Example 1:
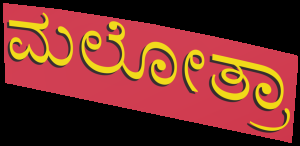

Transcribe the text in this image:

ಮಲೋತ್ರಾ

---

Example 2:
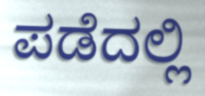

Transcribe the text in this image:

ಪಡೆದಲ್ಲಿ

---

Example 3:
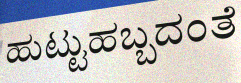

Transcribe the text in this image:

ಹುಟ್ಟುಹಬ್ಬದಂತೆ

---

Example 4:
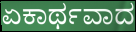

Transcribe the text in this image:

ಏಕಾರ್ಥವಾದ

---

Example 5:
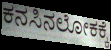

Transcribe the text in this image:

ಕನಸಿನಲೋಕಕ್ಕೆ